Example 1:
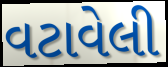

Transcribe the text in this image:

વટાવેલી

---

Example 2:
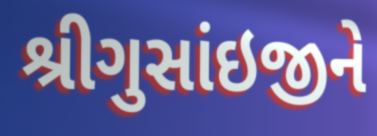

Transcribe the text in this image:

શ્રીગુસાંઇજીને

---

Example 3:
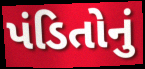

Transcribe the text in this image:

પંડિતોનું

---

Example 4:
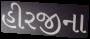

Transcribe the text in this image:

હીરજીના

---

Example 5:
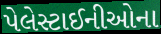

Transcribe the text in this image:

પેલેસ્ટાઈનીઓના